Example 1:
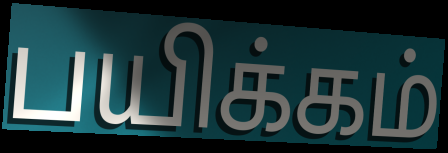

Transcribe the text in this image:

பயிக்கம்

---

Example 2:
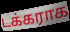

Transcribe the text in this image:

டக்கராக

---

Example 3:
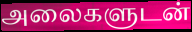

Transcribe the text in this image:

அலைகளுடன்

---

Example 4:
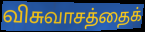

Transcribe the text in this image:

விசுவாசத்தைக்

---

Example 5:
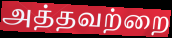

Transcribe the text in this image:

அத்தவற்றை